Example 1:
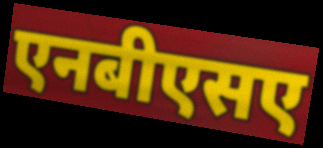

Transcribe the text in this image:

एनबीएसए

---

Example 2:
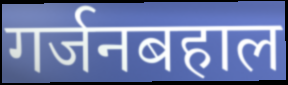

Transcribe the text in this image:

गर्जनबहाल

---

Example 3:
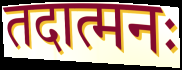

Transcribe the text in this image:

तदात्मनः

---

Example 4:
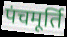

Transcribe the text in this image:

पंचमूर्ति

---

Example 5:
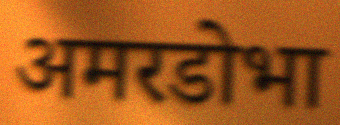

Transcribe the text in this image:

अमरडोभा